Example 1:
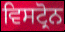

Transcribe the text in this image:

ਵਿਸਟ੍ਰੋਨ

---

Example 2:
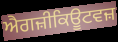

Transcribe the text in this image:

ਐਗਜ਼ੀਕਿਊਟਵਜ਼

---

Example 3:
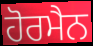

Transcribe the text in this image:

ਹੋਰਮੈਨ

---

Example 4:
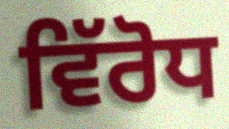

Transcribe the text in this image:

ਵਿੱਰੋਧ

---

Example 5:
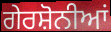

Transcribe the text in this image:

ਗੇਰਸ਼ੋਨੀਆਂ